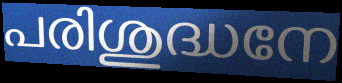
പരിശുദ്ധനേ